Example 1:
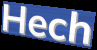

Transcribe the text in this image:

Hech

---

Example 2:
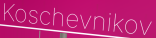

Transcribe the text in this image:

Koschevnikov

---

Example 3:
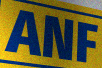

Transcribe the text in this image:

ANF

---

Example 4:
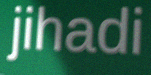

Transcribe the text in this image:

jihadi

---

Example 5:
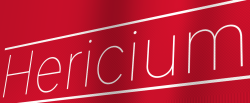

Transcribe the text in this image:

Hericium